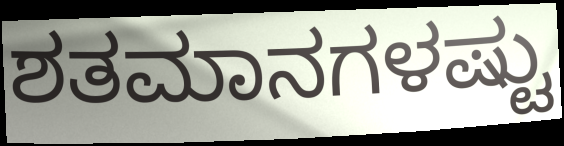
ಶತಮಾನಗಳಷ್ಟು